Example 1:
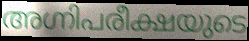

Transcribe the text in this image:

അഗ്നിപരീക്ഷയുടെ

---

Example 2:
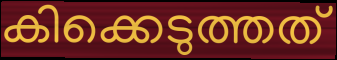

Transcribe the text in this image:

കിക്കെടുത്തത്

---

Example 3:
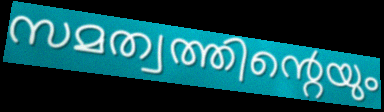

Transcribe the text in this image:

സമത്വത്തിന്റെയും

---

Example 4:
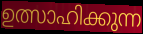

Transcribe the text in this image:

ഉത്സാഹിക്കുന്ന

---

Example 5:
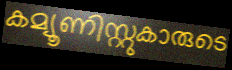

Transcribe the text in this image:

കമ്യൂണിസ്റ്റുകാരുടെ